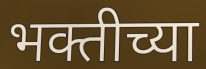
भक्तीच्या